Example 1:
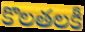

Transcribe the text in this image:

కొలతలకీ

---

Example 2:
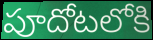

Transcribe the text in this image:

పూదోటలోకి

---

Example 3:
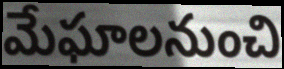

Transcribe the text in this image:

మేఘాలనుంచి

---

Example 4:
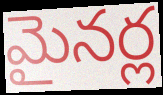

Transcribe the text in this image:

మైనర్ల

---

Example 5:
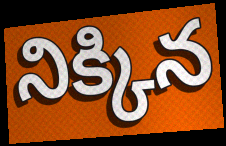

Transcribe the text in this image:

నిక్కిన